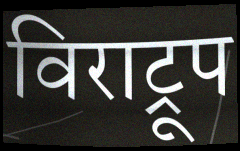
विराट्रूप